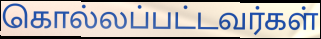
கொல்லப்பட்டவர்கள்